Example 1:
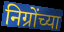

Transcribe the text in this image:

निग्रोंच्या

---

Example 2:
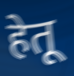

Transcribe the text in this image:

हेतू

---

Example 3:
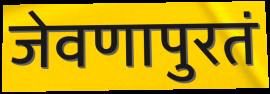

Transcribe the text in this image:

जेवणापुरतं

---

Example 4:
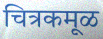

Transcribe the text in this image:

चित्रकमूळ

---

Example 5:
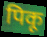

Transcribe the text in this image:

पिकू